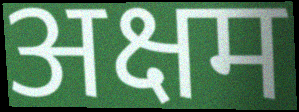
अक्षम